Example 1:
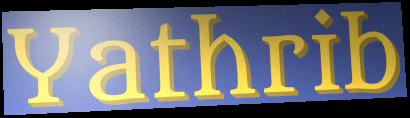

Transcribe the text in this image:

Yathrib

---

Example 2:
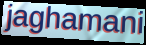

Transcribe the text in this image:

jaghamani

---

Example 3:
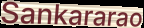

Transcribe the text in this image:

Sankararao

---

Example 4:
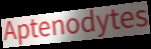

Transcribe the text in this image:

Aptenodytes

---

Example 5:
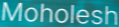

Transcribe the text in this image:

Moholesh